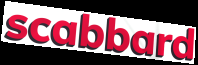
scabbard